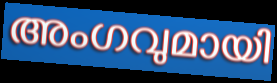
അംഗവുമായി